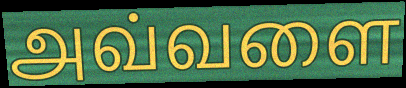
அவ்வளை